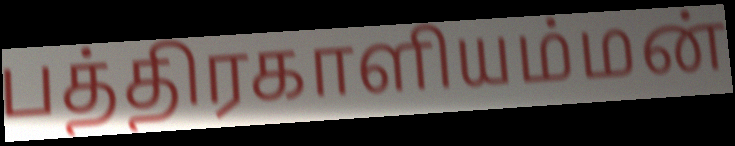
பத்திரகாளியம்மன்